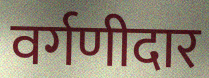
वर्गणीदार